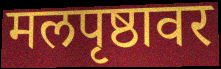
मलपृष्ठावर